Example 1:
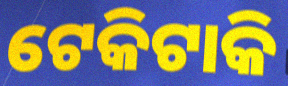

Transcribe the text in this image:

ଟେକିଟାକି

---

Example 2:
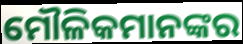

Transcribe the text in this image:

ମୌଳିକମାନଙ୍କର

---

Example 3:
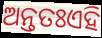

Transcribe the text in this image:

ଅନ୍ତତଃଏହି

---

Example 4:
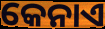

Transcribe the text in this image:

କେନାଏ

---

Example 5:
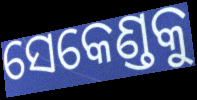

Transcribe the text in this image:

ସେକେଣ୍ଡକୁ